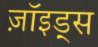
ज़ॉइड्स